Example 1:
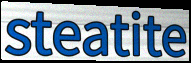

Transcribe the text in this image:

steatite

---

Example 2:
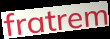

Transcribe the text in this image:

fratrem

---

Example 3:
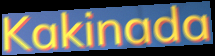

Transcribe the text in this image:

Kakinada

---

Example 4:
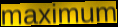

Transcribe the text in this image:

maximum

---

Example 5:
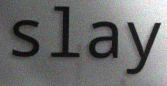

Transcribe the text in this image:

slay